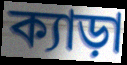
ক্যাড়া